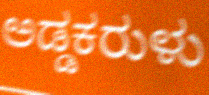
ಅಡ್ಡಕರುಳು